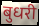
बुधरी